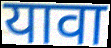
यावा